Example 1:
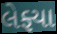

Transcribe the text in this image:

લેફ્યા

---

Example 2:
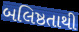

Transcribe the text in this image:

બલિષ્ઠતાથી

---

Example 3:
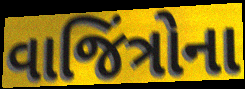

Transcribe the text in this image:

વાજિંત્રોના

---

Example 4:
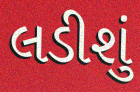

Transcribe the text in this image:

લડીશું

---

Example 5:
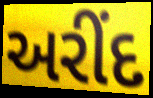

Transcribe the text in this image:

અરીંદ